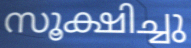
സൂക്ഷിച്ചു